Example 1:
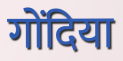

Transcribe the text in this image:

गोंदिया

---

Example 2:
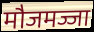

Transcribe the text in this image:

मौजमज्जा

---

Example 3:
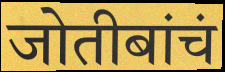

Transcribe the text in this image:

जोतीबांचं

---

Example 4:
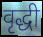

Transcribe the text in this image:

वृद्धी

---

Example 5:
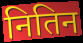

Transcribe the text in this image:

नितिन